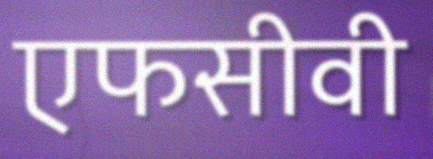
एफसीवी